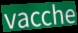
vacche